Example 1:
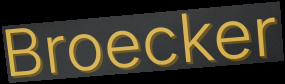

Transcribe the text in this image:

Broecker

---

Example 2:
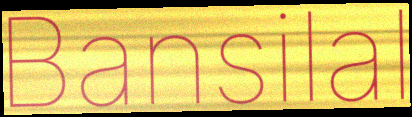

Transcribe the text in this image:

Bansilal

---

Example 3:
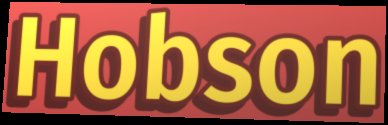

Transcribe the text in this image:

Hobson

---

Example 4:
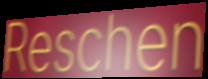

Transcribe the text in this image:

Reschen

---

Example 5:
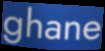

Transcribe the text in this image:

ghane